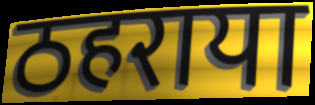
ठहराया